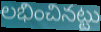
లభించినట్టు